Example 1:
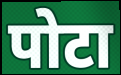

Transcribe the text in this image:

पोटा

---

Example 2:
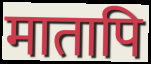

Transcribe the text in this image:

मातापि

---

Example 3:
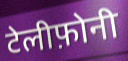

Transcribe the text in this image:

टेलीफ़ोनी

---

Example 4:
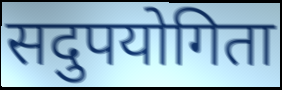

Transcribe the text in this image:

सदुपयोगिता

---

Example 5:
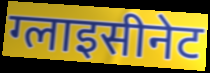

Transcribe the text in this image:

ग्लाइसीनेट